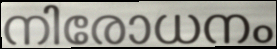
നിരോധനം